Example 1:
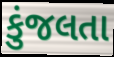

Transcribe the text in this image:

કુંજલતા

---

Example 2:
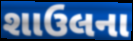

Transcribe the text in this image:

શાઉલના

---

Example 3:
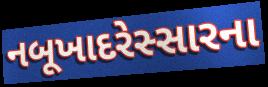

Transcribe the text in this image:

નબૂખાદરેસ્સારના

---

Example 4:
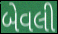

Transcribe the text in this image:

બેવલી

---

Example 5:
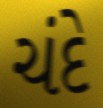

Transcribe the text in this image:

ચંદે